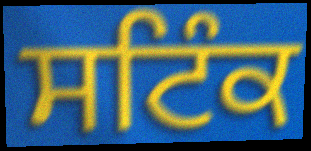
ਸਟਿੰਕ